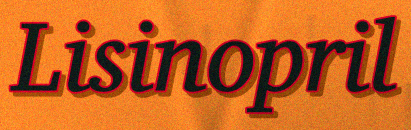
Lisinopril